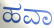
ಹವಾ